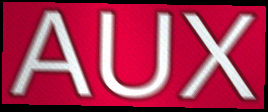
AUX